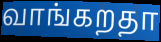
வாங்கறதா